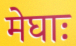
मेघाः